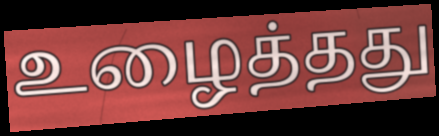
உழைத்தது